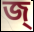
জ্